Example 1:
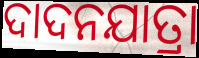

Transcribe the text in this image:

ଦାଦନଯାତ୍ରା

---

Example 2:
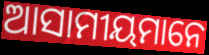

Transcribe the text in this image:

ଆସାମୀୟମାନେ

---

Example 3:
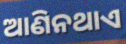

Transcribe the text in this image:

ଆଣିନଥାଏ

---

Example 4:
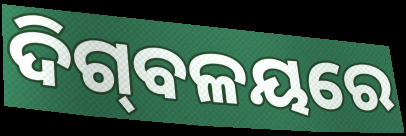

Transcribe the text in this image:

ଦିଗ୍‍ବଳୟରେ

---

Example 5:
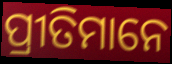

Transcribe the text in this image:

ପ୍ରୀତିମାନେ